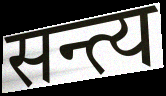
सन्त्य